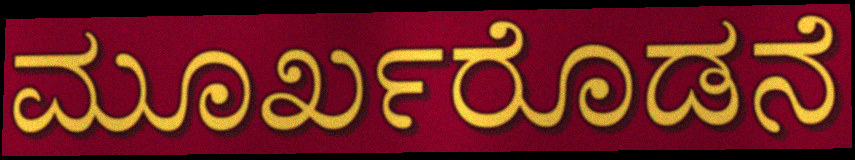
ಮೂರ್ಖರೊಡನೆ